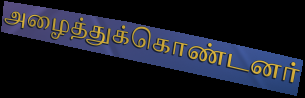
அழைத்துக்கொண்டனர்